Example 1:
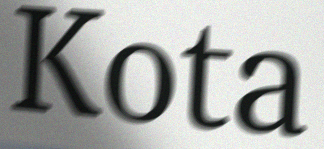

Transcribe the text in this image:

Kota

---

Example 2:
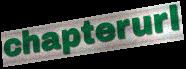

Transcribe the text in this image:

chapterurl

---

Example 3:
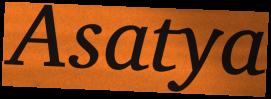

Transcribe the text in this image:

Asatya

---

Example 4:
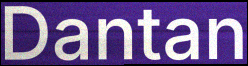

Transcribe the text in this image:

Dantan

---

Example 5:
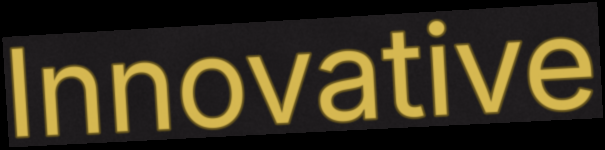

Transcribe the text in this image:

Innovative